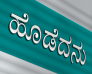
ಹೊಡೆದನು